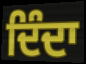
ਦਿੰਦਾ